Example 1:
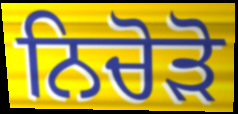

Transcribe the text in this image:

ਨਿਚੋੜੋ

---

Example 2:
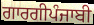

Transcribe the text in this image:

ਗਾਰਗੀਪੰਜਾਬੀ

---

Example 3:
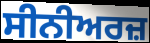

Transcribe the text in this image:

ਸੀਨੀਅਰਜ਼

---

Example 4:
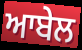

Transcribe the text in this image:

ਆਬੇਲ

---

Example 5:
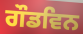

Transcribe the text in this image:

ਗੌਡਵਿਨ